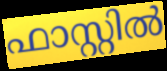
ഫാസ്റ്റിൽ